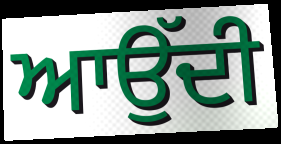
ਆਉੱਦੀ